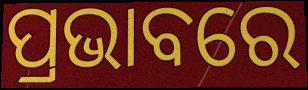
ପ୍ରଭାବରେ